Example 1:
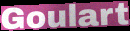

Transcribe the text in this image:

Goulart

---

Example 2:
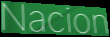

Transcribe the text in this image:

Nacion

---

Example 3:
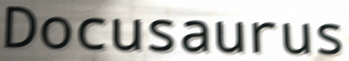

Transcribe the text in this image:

Docusaurus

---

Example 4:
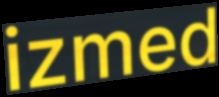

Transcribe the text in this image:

izmed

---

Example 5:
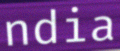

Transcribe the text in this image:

ndia